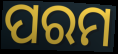
ପରମ